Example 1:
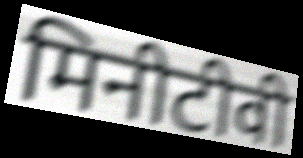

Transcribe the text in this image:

मिनीटीवी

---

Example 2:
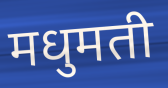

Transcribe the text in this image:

मधुमती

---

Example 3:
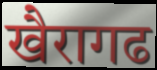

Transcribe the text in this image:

खैरागढ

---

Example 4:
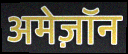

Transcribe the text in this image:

अमेज़ॉन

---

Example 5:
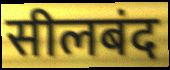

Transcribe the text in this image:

सीलबंद